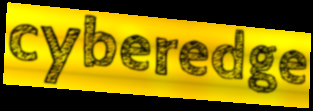
cyberedge